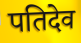
पतिदेव